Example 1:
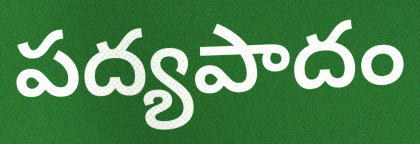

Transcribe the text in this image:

పద్యపాదం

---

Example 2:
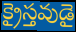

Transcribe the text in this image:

క్రైస్తవుడై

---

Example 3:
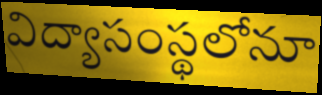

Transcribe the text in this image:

విద్యాసంస్థలోనూ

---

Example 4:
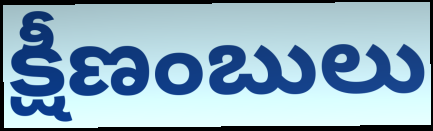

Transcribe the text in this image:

క్షీణంబులు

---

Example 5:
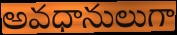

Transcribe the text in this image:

అవధానులుగా